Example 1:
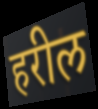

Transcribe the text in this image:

हरील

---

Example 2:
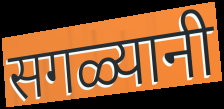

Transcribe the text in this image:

सगळ्यानी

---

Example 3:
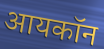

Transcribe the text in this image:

आयकॉन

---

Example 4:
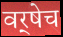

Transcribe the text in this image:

वर्षेच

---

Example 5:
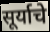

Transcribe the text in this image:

सूर्याचे